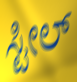
ಸ್ಟೀಲ್